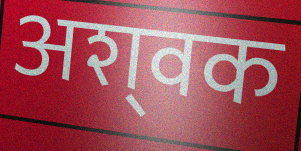
अश्वक